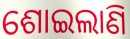
ଶୋଇଲାଣି